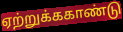
ஏற்றுக்ககாண்டு